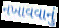
નખાવવાનું